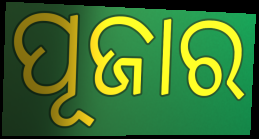
ପୂଜାର